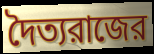
দৈত্যরাজের